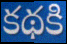
కథకి